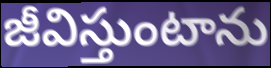
జీవిస్తుంటాను